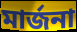
মার্জনা